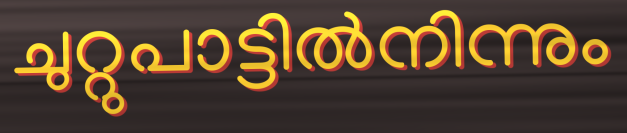
ചുറ്റുപാട്ടിൽനിന്നും